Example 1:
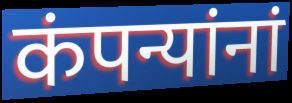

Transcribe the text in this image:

कंपन्यांनां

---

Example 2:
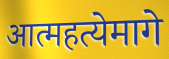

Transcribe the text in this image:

आत्महत्येमागे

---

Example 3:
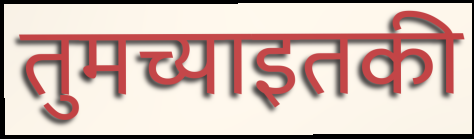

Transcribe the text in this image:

तुमच्याइतकी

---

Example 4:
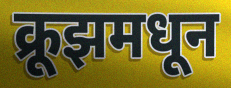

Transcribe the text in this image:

क्रूझमधून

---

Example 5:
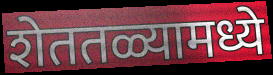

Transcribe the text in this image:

शेततळ्यामध्ये